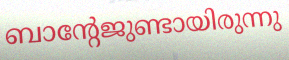
ബാന്റേജുണ്ടായിരുന്നു